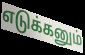
எடுக்கனும்